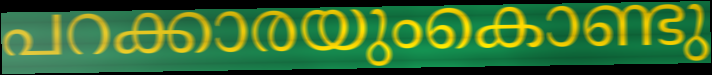
പറക്കാരയുംകൊണ്ടു